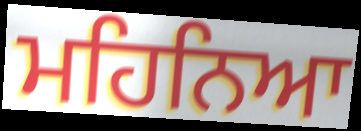
ਮਹਿਨਿਆ